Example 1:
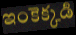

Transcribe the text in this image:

ఇంకెక్కడి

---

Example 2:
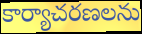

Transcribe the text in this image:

కార్యాచరణలను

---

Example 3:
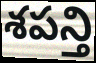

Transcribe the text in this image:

శపన్తి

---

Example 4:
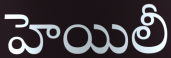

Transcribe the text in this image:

హెయిలీ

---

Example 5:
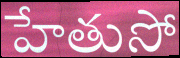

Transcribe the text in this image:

హేతుసో